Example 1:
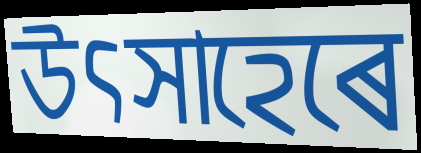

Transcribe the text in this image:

উৎসাহেৰে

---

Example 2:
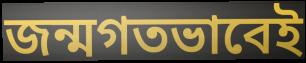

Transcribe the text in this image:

জন্মগতভাবেই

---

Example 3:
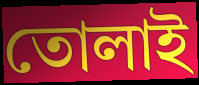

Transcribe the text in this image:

তোলাই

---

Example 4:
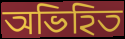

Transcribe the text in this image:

অভিহিত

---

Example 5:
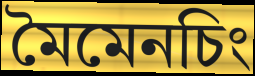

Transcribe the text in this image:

মৈমেনচিং